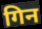
गिन